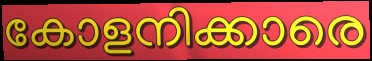
കോളനിക്കാരെ